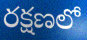
రక్షణలో